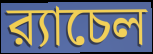
র‍্যাচেল